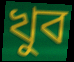
খুব